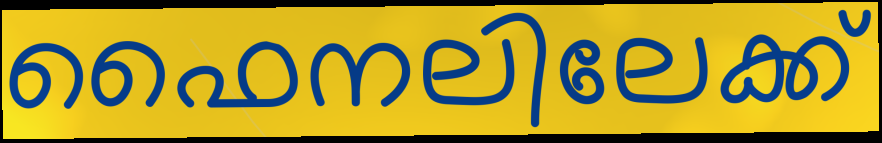
ഫൈനലിലേക്ക്